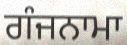
ਗੰਜਨਾਮਾ